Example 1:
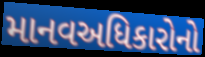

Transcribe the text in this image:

માનવઅધિકારોનો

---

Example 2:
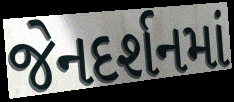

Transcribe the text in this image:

જેનદર્શનમાં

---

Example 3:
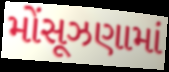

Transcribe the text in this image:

મોંસૂઝણામાં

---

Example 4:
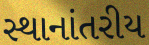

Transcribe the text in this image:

સ્થાનાંતરીય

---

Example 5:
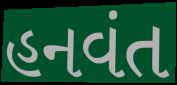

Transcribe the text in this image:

હનવંત